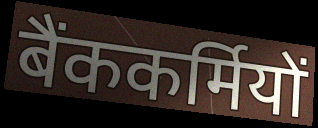
बैंककर्मियों